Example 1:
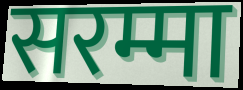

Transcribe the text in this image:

सरम्मा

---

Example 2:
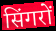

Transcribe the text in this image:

सिंगरों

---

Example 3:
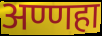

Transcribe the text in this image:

अण्णहा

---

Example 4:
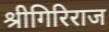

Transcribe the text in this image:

श्रीगिरिराज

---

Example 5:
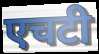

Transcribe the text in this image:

एचटी